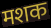
मशक